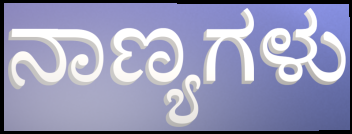
ನಾಣ್ಯಗಳು